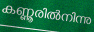
കണ്ണൂരിൽനിന്നു